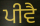
ਪੀਵੈ